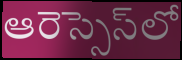
ఆరెస్సెస్‌లో